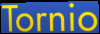
Tornio